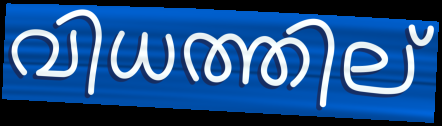
വിധത്തില്